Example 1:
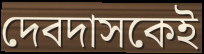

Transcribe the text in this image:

দেবদাসকেই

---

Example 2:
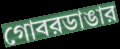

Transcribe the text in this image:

গোবরডাঙার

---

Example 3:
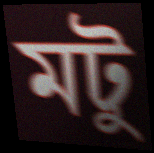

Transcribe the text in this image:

মটু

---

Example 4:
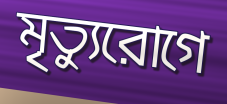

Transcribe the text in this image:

মৃত্যুরোগে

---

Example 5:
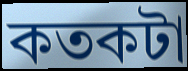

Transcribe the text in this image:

কতকটা